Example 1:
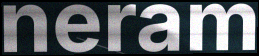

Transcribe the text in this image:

neram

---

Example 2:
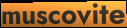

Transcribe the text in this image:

muscovite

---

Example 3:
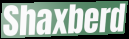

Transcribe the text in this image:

Shaxberd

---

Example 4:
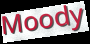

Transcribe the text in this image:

Moody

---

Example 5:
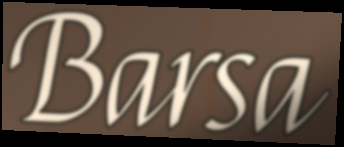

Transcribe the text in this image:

Barsa